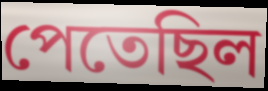
পেতেছিল